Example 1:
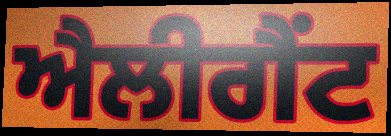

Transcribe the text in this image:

ਐਲੀਗੈਂਟ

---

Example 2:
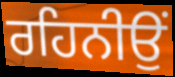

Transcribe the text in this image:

ਰਹਿਨੀਉਂ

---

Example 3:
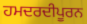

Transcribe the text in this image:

ਹਮਦਰਦੀਪੂਰਨ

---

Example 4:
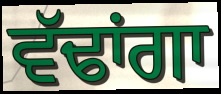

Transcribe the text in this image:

ਵੱਢਾਂਗਾ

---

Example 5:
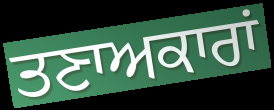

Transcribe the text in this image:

ਤਣਾਅਕਾਰਾਂ